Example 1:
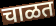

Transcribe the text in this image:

चाळत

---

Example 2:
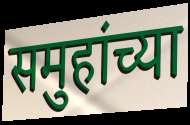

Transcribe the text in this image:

समुहांच्या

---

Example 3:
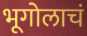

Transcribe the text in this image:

भूगोलाचं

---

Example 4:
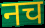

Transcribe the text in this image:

नच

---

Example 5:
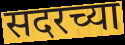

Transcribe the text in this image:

सदरच्या